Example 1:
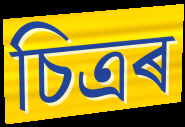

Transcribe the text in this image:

চিত্ৰৰ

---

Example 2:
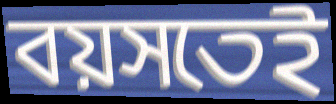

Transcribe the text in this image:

বয়সতেই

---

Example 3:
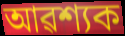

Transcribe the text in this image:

আৱশ্যক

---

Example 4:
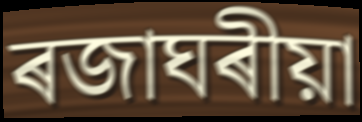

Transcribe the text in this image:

ৰজাঘৰীয়া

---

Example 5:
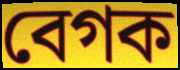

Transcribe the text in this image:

বেগক